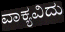
ವಾಕ್ಯವಿದು